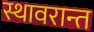
स्थावरान्त